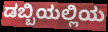
ಡಬ್ಬಿಯಲ್ಲಿಯ